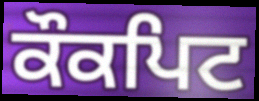
ਕੌਕਪਿਟ